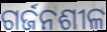
ଗର୍ଜନଶୀଳ